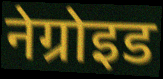
नेग्रोइड